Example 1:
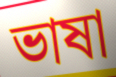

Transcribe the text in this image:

ভাষা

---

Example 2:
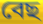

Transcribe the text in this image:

বেছ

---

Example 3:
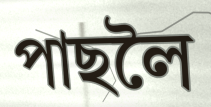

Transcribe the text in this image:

পাছলৈ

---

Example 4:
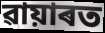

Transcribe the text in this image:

ৱায়াৰত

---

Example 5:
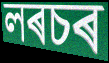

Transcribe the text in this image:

লৰচৰ